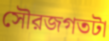
সৌরজগতটা